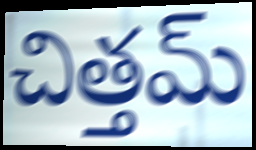
చిత్తమ్